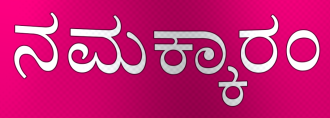
ನಮಕ್ಕಾರಂ